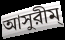
আসুরীম্